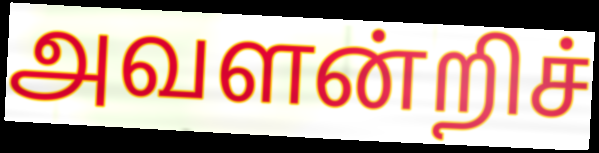
அவளன்றிச்